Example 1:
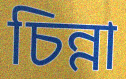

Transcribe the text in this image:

চিন্না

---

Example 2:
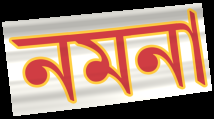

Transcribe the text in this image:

নমনা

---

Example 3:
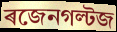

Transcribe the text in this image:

ৰজেনগল্টজ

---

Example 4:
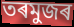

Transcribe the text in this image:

তৰমুজৰ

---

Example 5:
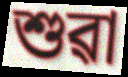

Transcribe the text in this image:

শুৱা